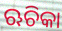
ଋଚିକା